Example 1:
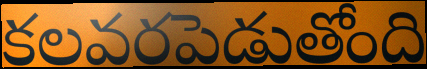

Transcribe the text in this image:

కలవరపెడుతోంది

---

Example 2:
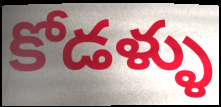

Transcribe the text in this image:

కోడళ్ళు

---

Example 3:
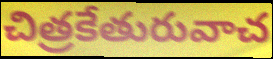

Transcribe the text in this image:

చిత్రకేతురువాచ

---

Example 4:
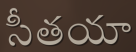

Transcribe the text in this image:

సీతయా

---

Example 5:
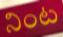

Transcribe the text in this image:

నింట